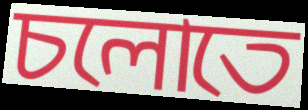
চলোতে